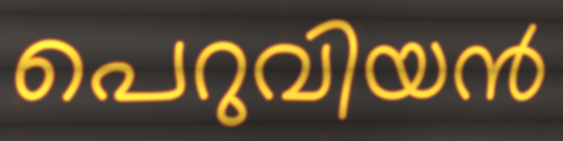
പെറുവിയൻ